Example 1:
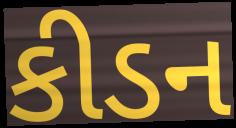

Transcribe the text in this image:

કીડન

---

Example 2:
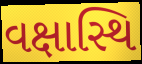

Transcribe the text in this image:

વક્ષાસ્થિ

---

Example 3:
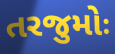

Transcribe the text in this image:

તરજુમોઃ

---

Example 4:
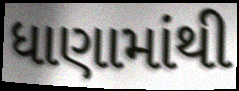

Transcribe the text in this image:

ધાણામાંથી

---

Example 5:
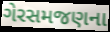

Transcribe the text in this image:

ગેરસમજણના